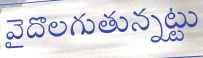
వైదొలగుతున్నట్టు